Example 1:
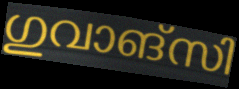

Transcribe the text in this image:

ഗുവാങ്സി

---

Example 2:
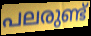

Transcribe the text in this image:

പലരുണ്ട്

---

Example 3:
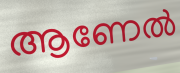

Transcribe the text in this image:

ആണേൽ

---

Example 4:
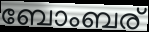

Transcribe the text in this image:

ബോംബര്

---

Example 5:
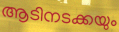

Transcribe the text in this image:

ആടിനടക്കയും